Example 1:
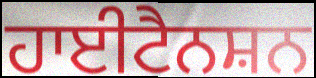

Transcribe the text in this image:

ਹਾਈਟੈਨਸ਼ਨ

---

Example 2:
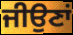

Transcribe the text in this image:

ਜੀਉਣਾਂ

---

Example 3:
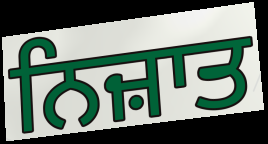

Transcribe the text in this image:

ਨਿਜ਼ਾਤ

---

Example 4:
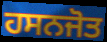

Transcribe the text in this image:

ਹਸਨਜੋਤ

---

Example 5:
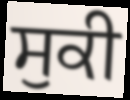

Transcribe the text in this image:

ਸੁਕੀ